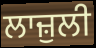
ਲਾਜ਼ੁਲੀ